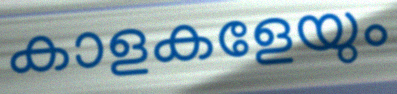
കാളകളേയും